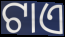
ଟାଏ